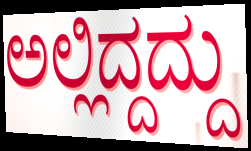
ಅಲ್ಲಿದ್ದದ್ದು